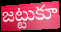
జట్టుకూ